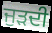
ਜੁੜਦੀ